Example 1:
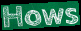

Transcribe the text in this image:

Hows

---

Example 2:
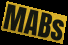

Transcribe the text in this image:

MABs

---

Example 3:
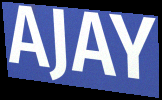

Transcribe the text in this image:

AJAY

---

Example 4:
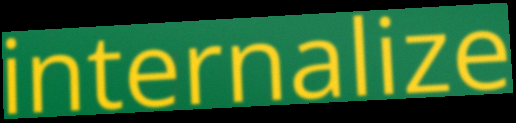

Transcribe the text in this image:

internalize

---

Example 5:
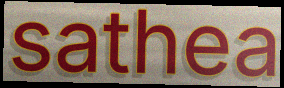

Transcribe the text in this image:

sathea